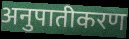
अनुपातीकरण